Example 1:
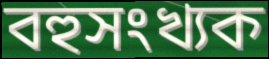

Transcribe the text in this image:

বহুসংখ্যক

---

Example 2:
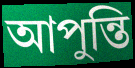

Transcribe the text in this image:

আপুন্তি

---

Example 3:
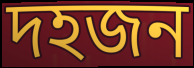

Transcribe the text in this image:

দহজন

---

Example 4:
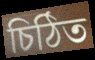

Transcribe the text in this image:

চিঠিত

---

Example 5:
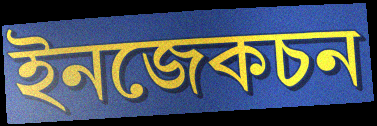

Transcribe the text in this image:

ইনজেকচন